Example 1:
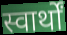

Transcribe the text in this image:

स्वार्थों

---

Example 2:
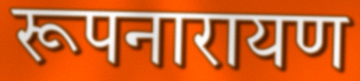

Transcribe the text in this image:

रूपनारायण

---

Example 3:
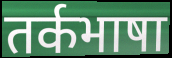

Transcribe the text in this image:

तर्कभाषा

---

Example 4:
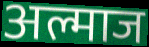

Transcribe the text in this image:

अल्माज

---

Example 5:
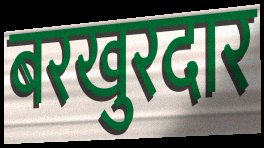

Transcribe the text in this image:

बरखुरदार